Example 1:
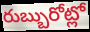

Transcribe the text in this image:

రుబ్బురోట్లో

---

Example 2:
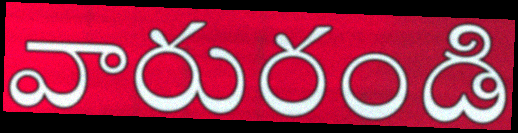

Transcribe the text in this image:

వారురండి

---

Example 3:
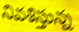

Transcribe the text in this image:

నివశిస్తున్న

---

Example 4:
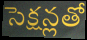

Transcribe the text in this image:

సెక్షన్లతో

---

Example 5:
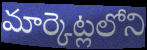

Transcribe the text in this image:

మార్కెట్లలోని